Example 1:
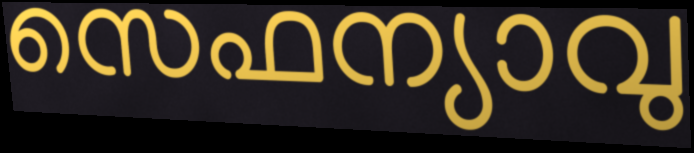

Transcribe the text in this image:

സെഫന്യാവു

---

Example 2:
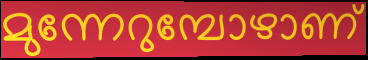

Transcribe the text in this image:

മുന്നേറുമ്പോഴാണ്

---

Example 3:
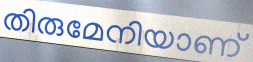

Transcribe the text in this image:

തിരുമേനിയാണ്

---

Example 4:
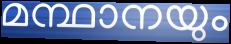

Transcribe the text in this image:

മന്ഥാനയും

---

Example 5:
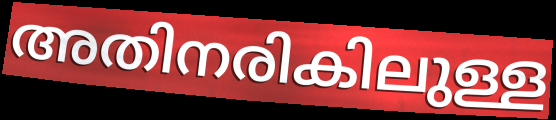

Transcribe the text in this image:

അതിനരികിലുള്ള